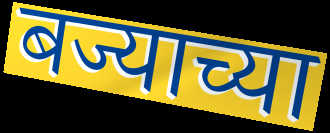
बज्याच्या